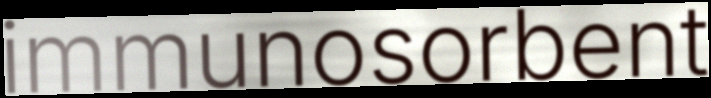
immunosorbent